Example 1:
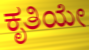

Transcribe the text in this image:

ಕೃತಿಯೇ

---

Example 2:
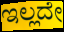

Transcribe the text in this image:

ಇಲ್ಲದೇ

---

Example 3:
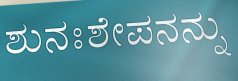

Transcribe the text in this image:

ಶುನಃಶೇಪನನ್ನು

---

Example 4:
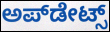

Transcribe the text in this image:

ಅಪ್‌ಡೇಟ್ಸ್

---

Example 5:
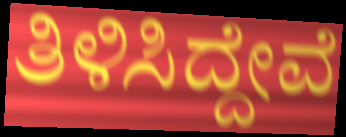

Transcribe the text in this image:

ತಿಳಿಸಿದ್ದೇವೆ